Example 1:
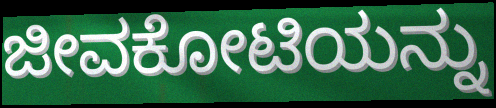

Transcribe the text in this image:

ಜೀವಕೋಟಿಯನ್ನು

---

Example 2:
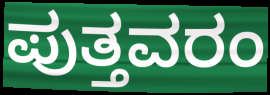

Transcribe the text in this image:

ಪುತ್ತವರಂ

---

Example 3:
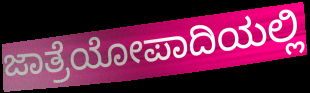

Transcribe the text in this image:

ಜಾತ್ರೆಯೋಪಾದಿಯಲ್ಲಿ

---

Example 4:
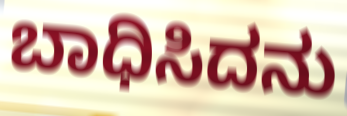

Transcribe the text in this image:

ಬಾಧಿಸಿದನು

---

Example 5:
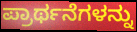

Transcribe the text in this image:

ಪ್ರಾರ್ಥನೆಗಳನ್ನು